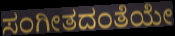
ಸಂಗೀತದಂತೆಯೇ